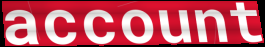
account